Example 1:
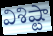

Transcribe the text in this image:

విశిష్టా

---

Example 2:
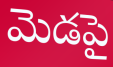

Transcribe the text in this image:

మెడపై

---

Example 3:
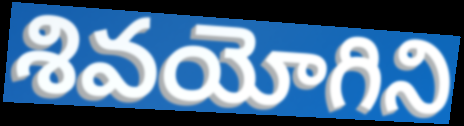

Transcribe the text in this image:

శివయోగిని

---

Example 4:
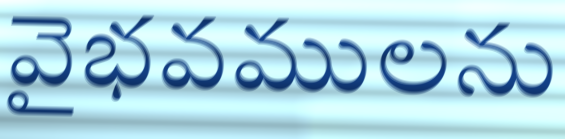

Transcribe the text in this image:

వైభవములను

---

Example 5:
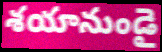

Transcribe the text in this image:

శయానుండై